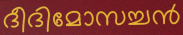
ദീദിമോസച്ചൻ